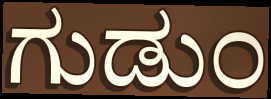
ಗುಡುಂ